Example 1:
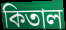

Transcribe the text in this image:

কিতাল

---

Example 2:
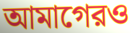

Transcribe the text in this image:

আমাগেরও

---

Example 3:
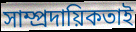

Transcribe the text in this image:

সাম্প্রদায়িকতাই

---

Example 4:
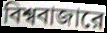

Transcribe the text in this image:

বিশ্ববাজারে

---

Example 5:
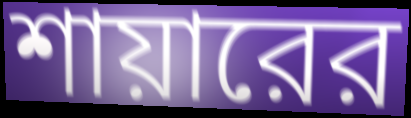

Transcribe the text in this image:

শায়ারের